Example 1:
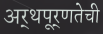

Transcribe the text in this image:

अर्थपूर्णतेची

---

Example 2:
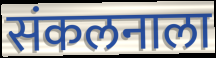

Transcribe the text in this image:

संकलनाला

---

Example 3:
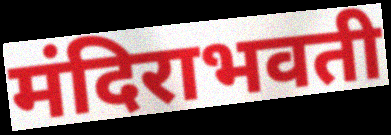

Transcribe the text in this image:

मंदिराभवती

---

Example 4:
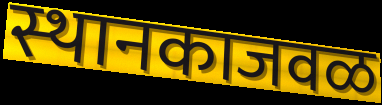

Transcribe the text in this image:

स्थानकाजवळ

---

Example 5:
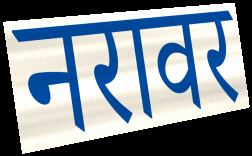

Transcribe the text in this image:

नरावर